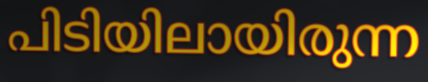
പിടിയിലായിരുന്ന